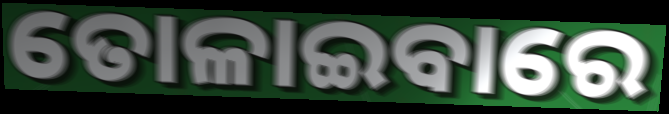
ତୋଳାଇବାରେ